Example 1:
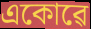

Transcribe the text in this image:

একোৱে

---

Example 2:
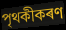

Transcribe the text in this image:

পৃথকীকৰণ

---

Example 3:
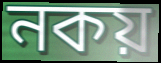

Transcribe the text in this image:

নকয়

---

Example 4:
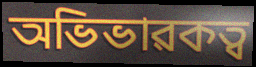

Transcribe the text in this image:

অভিভাৱকত্ব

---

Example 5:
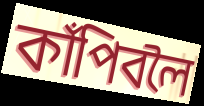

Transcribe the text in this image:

কাঁপিবলৈ